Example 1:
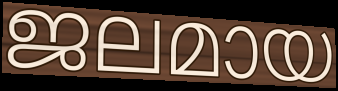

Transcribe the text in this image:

ജലമായ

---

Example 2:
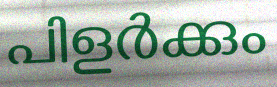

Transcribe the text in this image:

പിളർക്കും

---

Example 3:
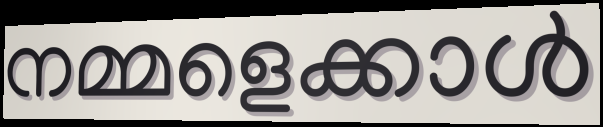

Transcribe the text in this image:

നമ്മളെക്കാൾ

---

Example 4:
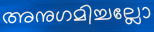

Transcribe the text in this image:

അനുഗമിച്ചല്ലോ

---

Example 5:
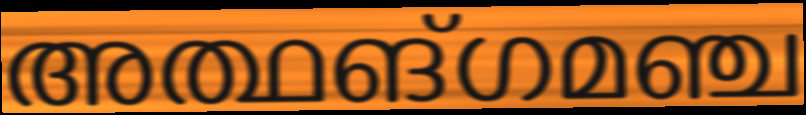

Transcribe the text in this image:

അത്ഥങ്ഗമഞ്ച